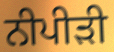
ਨੀਪੀੜੀ